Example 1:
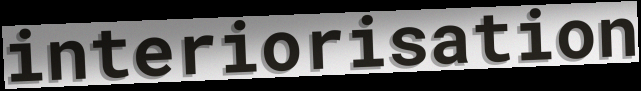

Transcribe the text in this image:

interiorisation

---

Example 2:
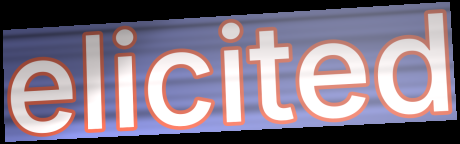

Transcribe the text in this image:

elicited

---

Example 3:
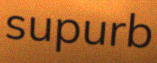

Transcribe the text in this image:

supurb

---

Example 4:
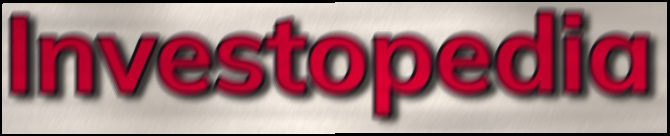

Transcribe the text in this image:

Investopedia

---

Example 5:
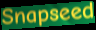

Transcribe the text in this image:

Snapseed